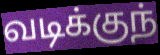
வடிக்குந்